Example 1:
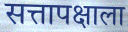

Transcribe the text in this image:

सत्तापक्षाला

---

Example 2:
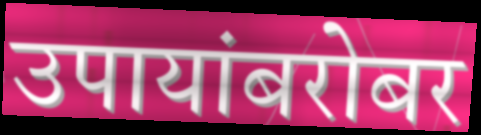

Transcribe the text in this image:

उपायांबरोबर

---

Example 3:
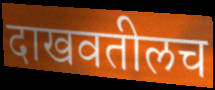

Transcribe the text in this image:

दाखवतीलच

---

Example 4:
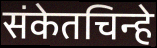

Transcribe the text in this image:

संकेतचिन्हे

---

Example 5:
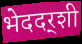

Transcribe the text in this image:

भेददर्शी